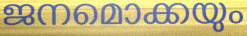
ജനമൊക്കയും